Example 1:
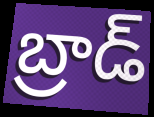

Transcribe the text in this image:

బ్రాడ్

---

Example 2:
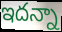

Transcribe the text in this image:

ఇదన్నా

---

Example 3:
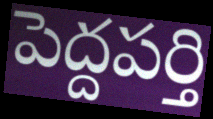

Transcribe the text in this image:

పెద్దపర్తి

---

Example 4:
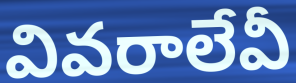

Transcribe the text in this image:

వివరాలేవీ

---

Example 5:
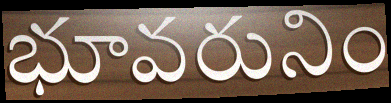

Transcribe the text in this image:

భూవరునిం